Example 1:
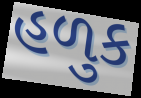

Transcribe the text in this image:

હળુક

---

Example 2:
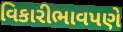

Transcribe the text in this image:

વિકારીભાવપણે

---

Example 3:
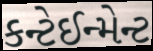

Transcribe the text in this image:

કન્ટેઈન્મેન્ટ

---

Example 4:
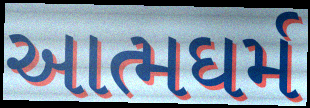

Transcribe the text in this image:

આત્મઘર્મ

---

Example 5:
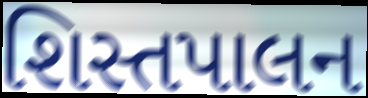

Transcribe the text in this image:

શિસ્તપાલન